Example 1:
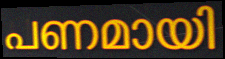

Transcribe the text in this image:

പണമായി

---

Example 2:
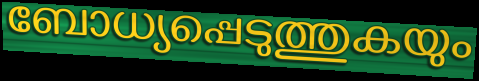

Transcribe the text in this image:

ബോധ്യപ്പെടുത്തുകയും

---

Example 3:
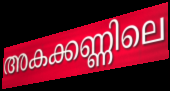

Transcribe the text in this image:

അകക്കണ്ണിലെ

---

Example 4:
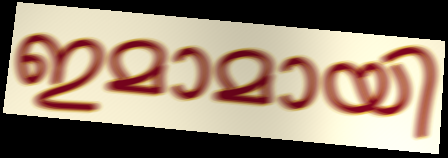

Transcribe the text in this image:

ഇമാമായി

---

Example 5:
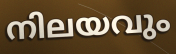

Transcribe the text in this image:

നിലയവും